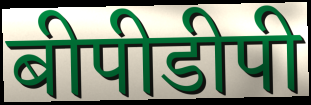
बीपीडीपी